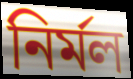
নিৰ্মল